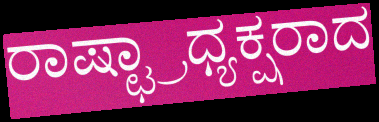
ರಾಷ್ಟ್ರಾಧ್ಯಕ್ಷರಾದ